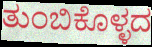
ತುಂಬಿಕೊಳ್ಳದ